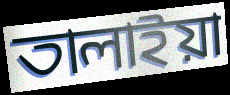
তালাইয়া